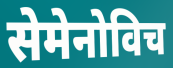
सेमेनोविच